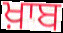
ਖ਼ਾਬ